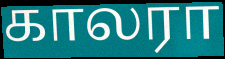
காலரா